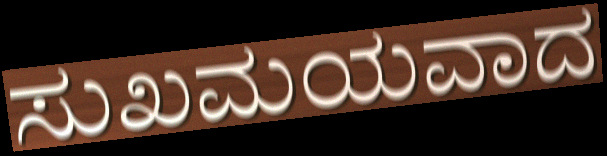
ಸುಖಮಯವಾದ